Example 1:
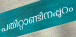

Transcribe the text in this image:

പതിറ്റാണ്ടിനപ്പുറം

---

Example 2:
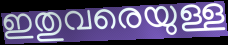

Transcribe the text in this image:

ഇതുവരെയുള്ള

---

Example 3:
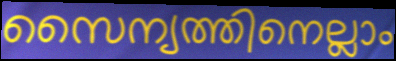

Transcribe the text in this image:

സൈന്യത്തിനെല്ലാം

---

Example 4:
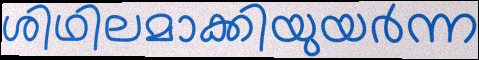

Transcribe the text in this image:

ശിഥിലമാക്കിയുയർന്ന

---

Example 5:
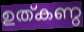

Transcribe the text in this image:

ഉത്കണ്ഠ